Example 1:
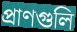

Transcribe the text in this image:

প্রাণগুলি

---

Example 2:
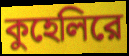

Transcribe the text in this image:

কুহেলিরে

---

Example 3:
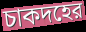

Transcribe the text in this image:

চাকদহের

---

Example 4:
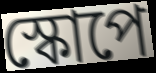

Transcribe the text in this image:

স্কোপে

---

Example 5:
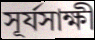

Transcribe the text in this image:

সূর্যসাক্ষী